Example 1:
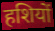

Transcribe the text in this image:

हशियों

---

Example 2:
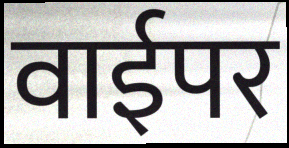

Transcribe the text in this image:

वाईपर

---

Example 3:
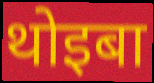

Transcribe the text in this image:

थोइबा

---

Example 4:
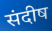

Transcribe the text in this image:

संदीष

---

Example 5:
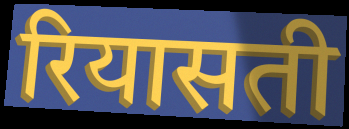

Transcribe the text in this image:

रियासती